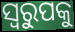
ସ୍ଵରୁପକୁ